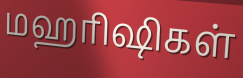
மஹரிஷிகள்